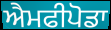
ਐਮਫੀਪੋਡਾ